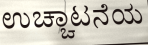
ಉಚ್ಚಾಟನೆಯ